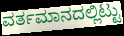
ವರ್ತಮಾನದಲ್ಲಿಟ್ಟು